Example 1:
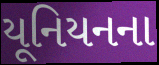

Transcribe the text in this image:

યૂનિયનના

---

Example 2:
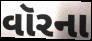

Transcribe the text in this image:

વૉરના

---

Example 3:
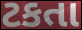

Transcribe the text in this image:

ટકતા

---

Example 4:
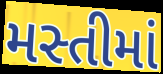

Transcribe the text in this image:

મસ્તીમાં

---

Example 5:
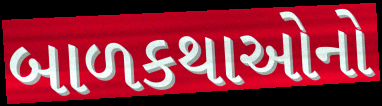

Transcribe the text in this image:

બાળકથાઓનો